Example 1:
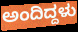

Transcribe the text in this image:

ಅಂದಿದ್ದಳು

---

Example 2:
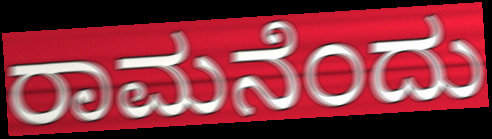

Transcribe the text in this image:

ರಾಮನೆಂದು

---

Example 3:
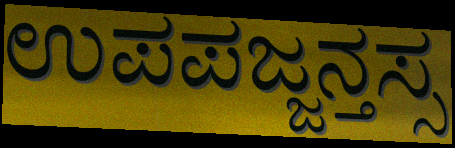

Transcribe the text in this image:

ಉಪಪಜ್ಜನ್ತಸ್ಸ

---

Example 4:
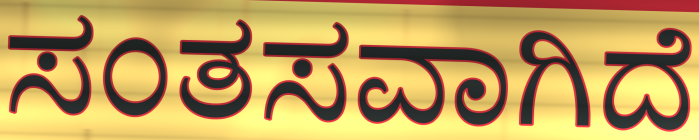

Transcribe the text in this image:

ಸಂತಸವಾಗಿದೆ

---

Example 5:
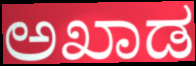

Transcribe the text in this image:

ಅಖಾಡ